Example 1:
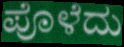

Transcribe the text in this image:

ಪೊಳೆದು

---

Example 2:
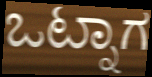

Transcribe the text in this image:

ಒಟ್ನಾಗ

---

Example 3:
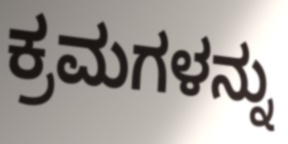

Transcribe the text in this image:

ಕ್ರಮಗಳನ್ನು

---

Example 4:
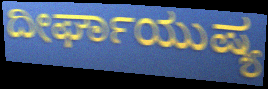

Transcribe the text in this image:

ದೀರ್ಘಾಯುಷ್ಯ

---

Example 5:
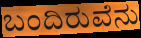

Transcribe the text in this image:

ಬಂದಿರುವೆನು